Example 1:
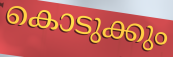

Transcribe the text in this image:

കൊടുക്കും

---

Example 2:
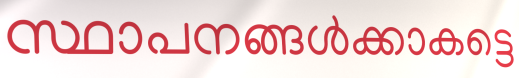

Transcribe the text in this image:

സ്ഥാപനങ്ങൾക്കാകട്ടെ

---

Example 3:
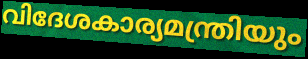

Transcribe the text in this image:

വിദേശകാര്യമന്ത്രിയും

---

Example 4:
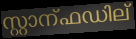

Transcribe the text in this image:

സ്റ്റാന്ഫഡില്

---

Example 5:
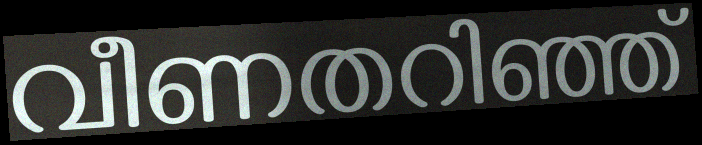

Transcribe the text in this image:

വീണതറിഞ്ഞ്